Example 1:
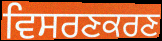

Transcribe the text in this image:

ਵਿਸਰਣਕਰਣ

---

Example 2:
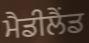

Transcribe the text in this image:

ਮੈਡੀਲੈਂਡ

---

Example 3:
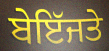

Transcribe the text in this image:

ਬੇਇੱਜਤੇ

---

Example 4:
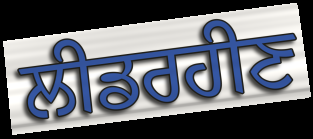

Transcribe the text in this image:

ਲੀਡਰਹੀਣ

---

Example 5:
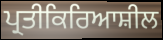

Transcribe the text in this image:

ਪ੍ਰਤੀਕਿਰਿਆਸ਼ੀਲ